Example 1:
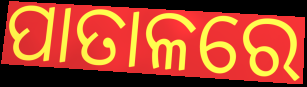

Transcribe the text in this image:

ପାତାଳରେ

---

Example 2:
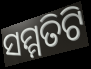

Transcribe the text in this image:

ସମ୍ମତିଟି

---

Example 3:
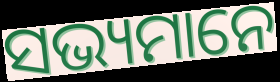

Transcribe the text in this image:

ସଭ୍ୟମାନେ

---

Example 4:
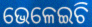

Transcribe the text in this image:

ଭେଳେଇଚି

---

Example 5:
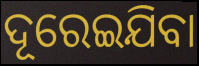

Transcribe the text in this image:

ଦୂରେଇଯିବା